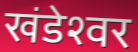
खंडेश्वर